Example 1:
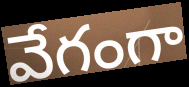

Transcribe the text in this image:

వేగంగా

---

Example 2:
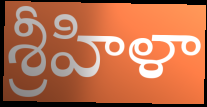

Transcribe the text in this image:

శ్రీహిళా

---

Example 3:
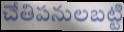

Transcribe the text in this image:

చేతిపనులబట్టి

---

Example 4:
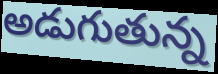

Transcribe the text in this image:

అడుగుతున్న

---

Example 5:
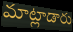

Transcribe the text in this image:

మాట్లాడారు